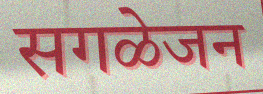
सगळेजन